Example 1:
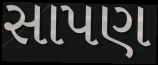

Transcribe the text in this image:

સાપણ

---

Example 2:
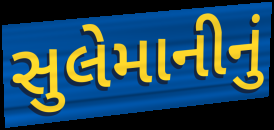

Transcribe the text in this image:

સુલેમાનીનું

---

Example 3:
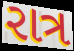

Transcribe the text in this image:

રાત્ર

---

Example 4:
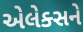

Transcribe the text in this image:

એલેક્સને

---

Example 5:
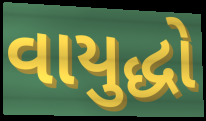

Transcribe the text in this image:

વાયુદ્ધો